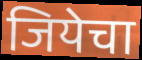
जियेचा